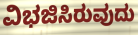
ವಿಭಜಿಸಿರುವುದು